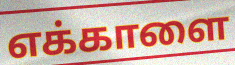
எக்காளை